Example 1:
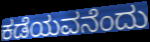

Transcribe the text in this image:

ಕಡೆಯವನೆಂದು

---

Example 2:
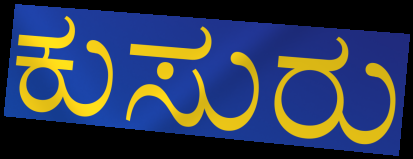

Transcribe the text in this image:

ಕುಸುರು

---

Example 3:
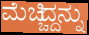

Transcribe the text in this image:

ಮೆಚ್ಚಿದ್ದನ್ನು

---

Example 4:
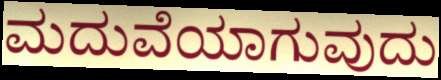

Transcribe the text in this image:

ಮದುವೆಯಾಗುವುದು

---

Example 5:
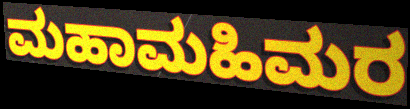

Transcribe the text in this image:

ಮಹಾಮಹಿಮರ